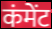
कंमेंट